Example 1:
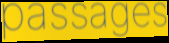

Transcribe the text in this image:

passages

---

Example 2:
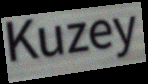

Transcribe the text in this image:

Kuzey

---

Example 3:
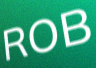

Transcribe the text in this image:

ROB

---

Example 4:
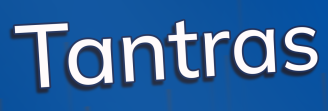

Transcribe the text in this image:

Tantras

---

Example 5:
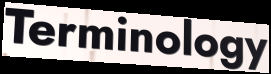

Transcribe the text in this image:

Terminology